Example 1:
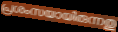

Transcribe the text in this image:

പ്രശംസയായിരുന്നതു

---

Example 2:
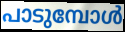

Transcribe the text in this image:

പാടുമ്പോൾ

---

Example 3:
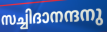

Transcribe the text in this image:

സച്ചിദാനന്ദനു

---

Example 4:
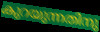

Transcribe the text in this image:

കുറയുന്നതിനു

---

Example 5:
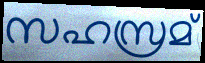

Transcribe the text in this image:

സഹസ്രമ്